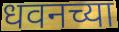
धवनच्या